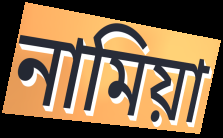
নামিয়া